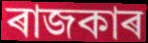
ৰাজকাৰ